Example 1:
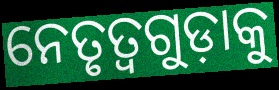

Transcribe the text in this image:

ନେତୃତ୍ୱଗୁଡ଼ାକୁ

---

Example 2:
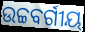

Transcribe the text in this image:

ଉଚ୍ଚବର୍ଗୀୟ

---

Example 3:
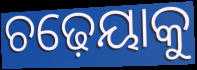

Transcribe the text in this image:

ଚଢ଼େୟାକୁ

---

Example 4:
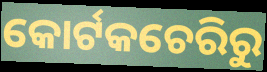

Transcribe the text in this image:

କୋର୍ଟକଚେରିରୁ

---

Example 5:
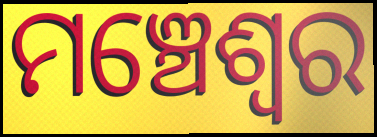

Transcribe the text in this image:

ମଞ୍ଚେଶ୍ଵର